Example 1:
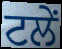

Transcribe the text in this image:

ਟਲੇਂ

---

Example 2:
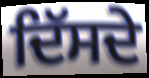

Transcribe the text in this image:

ਦਿੱਸਦੇ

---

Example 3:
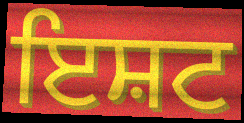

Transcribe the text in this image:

ਇਸ਼ਟ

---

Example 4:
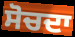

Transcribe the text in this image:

ਸੋਚਦਾ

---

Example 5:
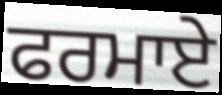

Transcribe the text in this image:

ਫਰਮਾਏ